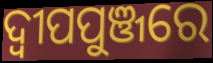
ଦ୍ୱୀପପୁଞ୍ଜରେ